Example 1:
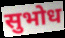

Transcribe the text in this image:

सुभोध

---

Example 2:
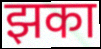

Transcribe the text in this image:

झका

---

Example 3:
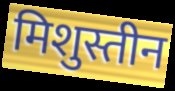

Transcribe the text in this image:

मिशुस्तीन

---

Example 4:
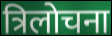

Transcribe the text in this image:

त्रिलोचना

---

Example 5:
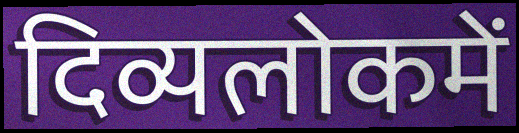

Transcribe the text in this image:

दिव्यलोकमें